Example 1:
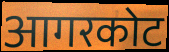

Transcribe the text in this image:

आगरकोट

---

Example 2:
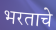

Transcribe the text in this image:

भरताचे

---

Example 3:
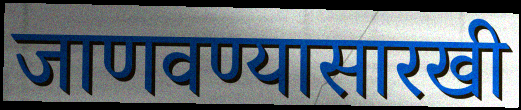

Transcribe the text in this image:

जाणवण्यासारखी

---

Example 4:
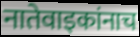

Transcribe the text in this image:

नातेवाइकांनाच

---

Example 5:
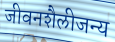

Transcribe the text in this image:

जीवनशैलीजन्य